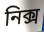
নিক্স